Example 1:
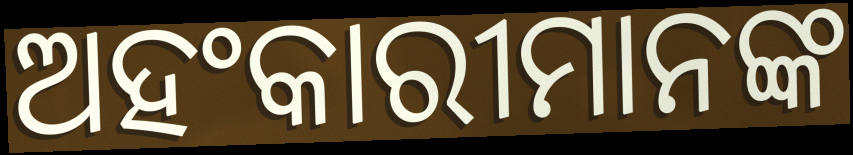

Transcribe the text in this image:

ଅହଂକାରୀମାନଙ୍କ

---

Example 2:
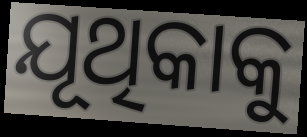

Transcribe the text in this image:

ଯୂଥିକାକୁ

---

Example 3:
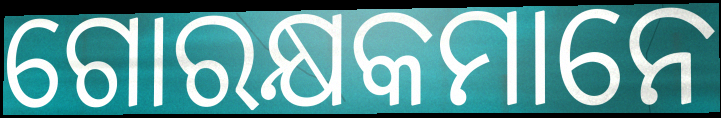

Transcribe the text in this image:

ଗୋରକ୍ଷକମାନେ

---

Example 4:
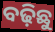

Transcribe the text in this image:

ବଢ଼ିଛୁ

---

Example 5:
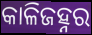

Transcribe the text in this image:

କାଳିଜହ୍ନର